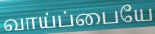
வாய்ப்பையே